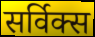
सर्विक्स